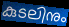
കുടലിനും